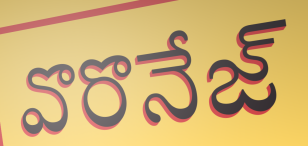
వొరొనేజ్